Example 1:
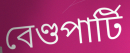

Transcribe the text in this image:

বেণ্ডপাৰ্টি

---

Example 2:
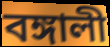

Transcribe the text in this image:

বঙ্গালী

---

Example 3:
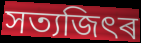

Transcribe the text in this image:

সত্যজিৎৰ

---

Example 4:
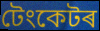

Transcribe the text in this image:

টেংকেটৰ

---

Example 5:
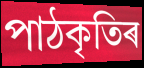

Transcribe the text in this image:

পাঠকৃতিৰ